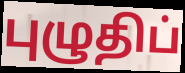
புழுதிப்